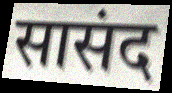
सासंद